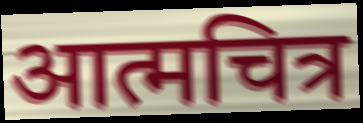
आत्मचित्र